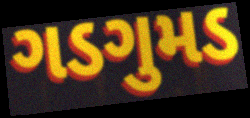
ગડગુમડ